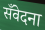
सँवेदना